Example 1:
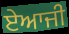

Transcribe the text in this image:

ਏਆਜੀ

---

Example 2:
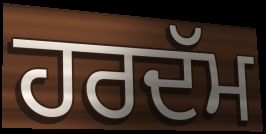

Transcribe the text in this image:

ਹਰਦੱਮ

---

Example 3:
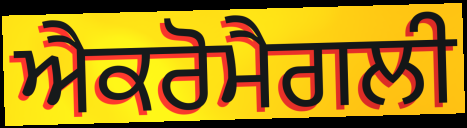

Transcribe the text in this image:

ਐਕਰੋਮੈਗਲੀ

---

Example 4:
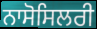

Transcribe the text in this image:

ਨਾਸੋਸਿਲਰੀ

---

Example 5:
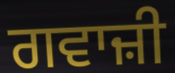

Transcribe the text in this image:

ਗਵਾਜ਼ੀ